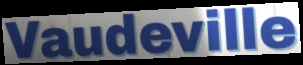
Vaudeville